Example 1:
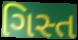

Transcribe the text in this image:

ગિસ્ત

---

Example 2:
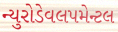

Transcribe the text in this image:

ન્યુરોડેવલપમેન્ટલ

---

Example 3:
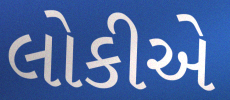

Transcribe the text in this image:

લોકીએ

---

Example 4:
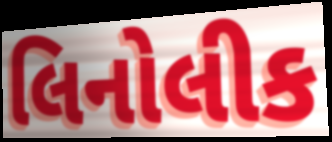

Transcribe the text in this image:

લિનોલીક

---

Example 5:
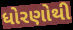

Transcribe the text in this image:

ધોરણોથી